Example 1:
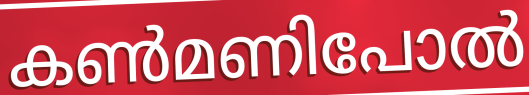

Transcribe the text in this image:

കൺമണിപോൽ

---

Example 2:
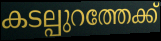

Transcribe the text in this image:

കടല്പുറത്തേക്ക്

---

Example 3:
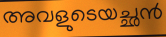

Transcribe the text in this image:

അവളുടെയച്ഛൻ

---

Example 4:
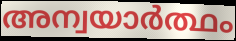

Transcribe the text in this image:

അന്വയാർത്ഥം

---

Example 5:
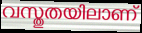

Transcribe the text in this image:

വസ്തുതയിലാണ്